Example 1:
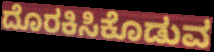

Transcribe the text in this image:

ದೊರಕಿಸಿಕೊಡುವ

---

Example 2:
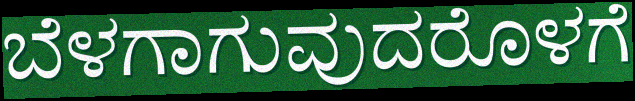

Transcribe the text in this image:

ಬೆಳಗಾಗುವುದರೊಳಗೆ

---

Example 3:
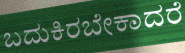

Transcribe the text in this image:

ಬದುಕಿರಬೇಕಾದರೆ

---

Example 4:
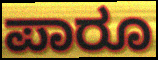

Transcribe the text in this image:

ಪಾರೂ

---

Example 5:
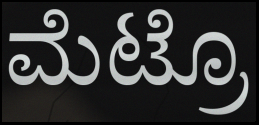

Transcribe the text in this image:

ಮೆಟ್ರೊ